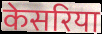
केसरिया